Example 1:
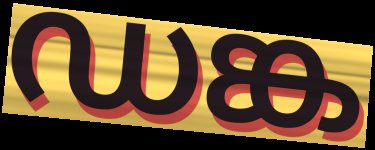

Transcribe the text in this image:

ഡങ്ക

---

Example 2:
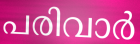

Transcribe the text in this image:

പരിവാർ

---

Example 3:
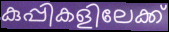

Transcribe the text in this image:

കുപ്പികളിലേക്ക്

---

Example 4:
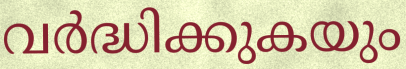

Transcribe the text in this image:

വർദ്ധിക്കുകയും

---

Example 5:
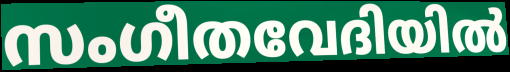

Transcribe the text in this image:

സംഗീതവേദിയിൽ